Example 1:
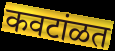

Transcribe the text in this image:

कवटांळत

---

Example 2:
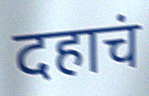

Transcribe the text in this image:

दहाचं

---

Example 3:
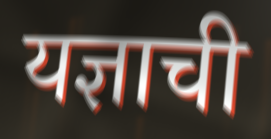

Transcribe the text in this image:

यज्ञाची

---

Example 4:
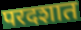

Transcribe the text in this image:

परदशात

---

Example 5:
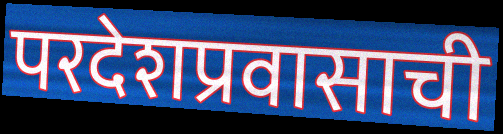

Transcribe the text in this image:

परदेशप्रवासाची